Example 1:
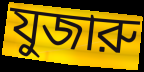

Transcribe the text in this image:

যুজাৰু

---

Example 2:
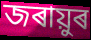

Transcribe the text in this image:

জৰায়ুৰ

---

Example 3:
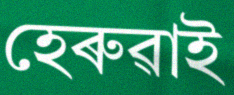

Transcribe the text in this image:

হেৰুৱাই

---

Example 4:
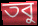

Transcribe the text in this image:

তবু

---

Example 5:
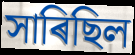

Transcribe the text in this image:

সাৰিছিল